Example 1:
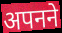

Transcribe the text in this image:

अपनने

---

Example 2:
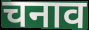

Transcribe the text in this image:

चनाव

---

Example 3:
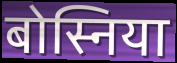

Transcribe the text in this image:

बोस्निया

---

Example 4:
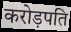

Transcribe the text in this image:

करोड़पति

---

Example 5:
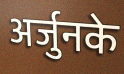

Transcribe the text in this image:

अर्जुनके